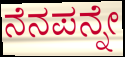
ನೆನಪನ್ನೇ